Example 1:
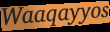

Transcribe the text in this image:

Waaqayyos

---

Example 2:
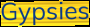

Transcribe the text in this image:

Gypsies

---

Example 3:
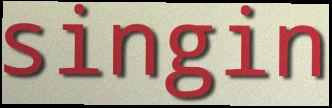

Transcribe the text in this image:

singin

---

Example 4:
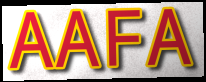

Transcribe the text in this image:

AAFA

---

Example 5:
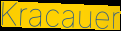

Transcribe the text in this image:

Kracauer